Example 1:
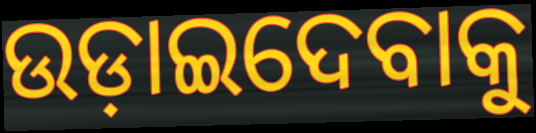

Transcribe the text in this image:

ଉଡ଼ାଇଦେବାକୁ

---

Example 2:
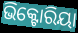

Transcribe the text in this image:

ଭିକ୍ଟୋରିୟା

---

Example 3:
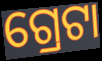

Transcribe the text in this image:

ଗ୍ରେଟା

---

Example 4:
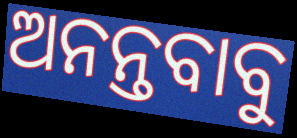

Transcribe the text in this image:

ଅନନ୍ତବାବୁ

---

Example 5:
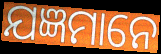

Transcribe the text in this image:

ଯଜ୍ଞମାନେ